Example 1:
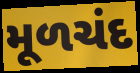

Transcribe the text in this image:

મૂળચંદ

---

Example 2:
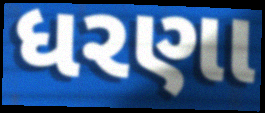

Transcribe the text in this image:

ધરણા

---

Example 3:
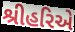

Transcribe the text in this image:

શ્રીહરિએ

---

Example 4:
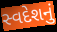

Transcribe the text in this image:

સ્વદેશનું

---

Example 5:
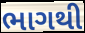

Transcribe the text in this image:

ભાગથી